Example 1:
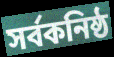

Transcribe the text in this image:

সর্বকনিষ্ঠ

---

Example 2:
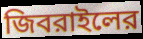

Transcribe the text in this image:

জিবরাইলের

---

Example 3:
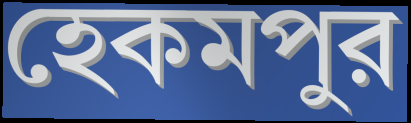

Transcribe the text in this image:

হেকমপুর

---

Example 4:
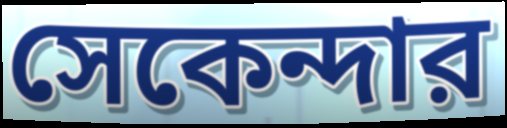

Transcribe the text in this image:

সেকেন্দার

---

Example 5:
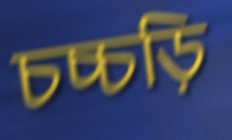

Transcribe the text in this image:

চচ্চড়ি